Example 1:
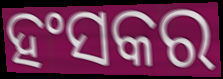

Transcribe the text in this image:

ହଂସକର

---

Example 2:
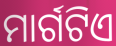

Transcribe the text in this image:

ମାର୍ଗଟିଏ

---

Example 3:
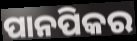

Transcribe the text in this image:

ପାନପିକର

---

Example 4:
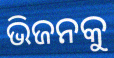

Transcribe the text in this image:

ଭିଜନକୁ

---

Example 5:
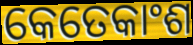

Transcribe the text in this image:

କେତେକାଂଶ